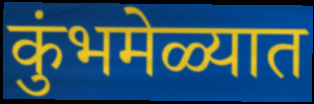
कुंभमेळ्यात